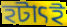
হটাৎই